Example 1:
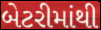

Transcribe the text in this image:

બેટરીમાંથી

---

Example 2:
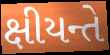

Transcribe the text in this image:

ક્ષીયન્તે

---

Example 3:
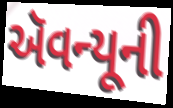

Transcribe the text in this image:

ઍવન્યૂની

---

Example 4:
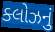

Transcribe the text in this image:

ક્લોઝનું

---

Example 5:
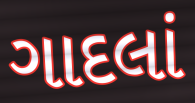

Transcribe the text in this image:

ગાદલાં